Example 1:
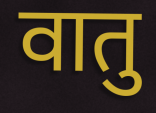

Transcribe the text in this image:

वातु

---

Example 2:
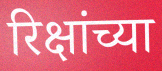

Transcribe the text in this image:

रिक्षांच्या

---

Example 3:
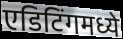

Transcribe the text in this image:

एडिटिंगमध्ये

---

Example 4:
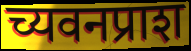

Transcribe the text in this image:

च्यवनप्राश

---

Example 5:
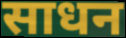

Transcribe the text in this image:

साधन